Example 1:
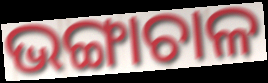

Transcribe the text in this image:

ଭଙ୍ଗାଚାଳ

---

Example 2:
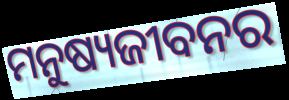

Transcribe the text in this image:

ମନୁଷ୍ୟଜୀବନର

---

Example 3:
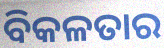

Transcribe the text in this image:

ବିକଳତାର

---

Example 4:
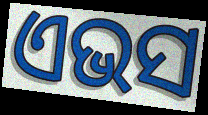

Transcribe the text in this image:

ଏଭସ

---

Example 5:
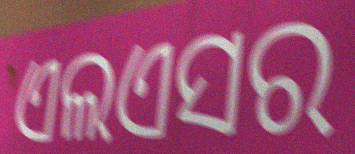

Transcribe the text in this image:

ଏଲଏସର